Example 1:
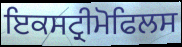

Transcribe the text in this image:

ਇਕਸਟ੍ਰੀਮੋਫਿਲਸ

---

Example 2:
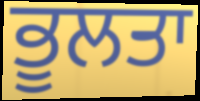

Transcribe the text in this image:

ਭੂਲਤਾ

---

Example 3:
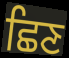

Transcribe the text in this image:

ਛਿਣ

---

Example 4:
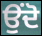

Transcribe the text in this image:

ਉਂਦੋ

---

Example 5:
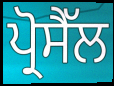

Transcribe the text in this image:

ਪ੍ਰੋਸੈੱਲ